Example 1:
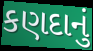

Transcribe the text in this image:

કણદાનું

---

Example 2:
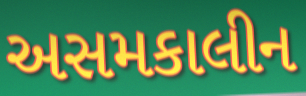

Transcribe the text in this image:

અસમકાલીન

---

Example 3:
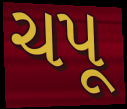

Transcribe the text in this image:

ચપૂ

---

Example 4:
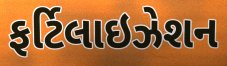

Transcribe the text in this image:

ફર્ટિલાઇઝેશન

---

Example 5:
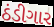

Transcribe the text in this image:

ઠંડીગાર